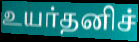
உயர்தனிச்